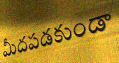
మీదపడకుండా